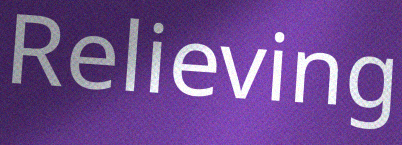
Relieving